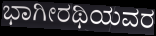
ಭಾಗೀರಥಿಯವರ